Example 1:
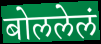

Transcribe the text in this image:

बोललेलं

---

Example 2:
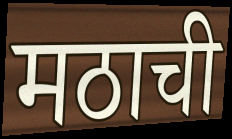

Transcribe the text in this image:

मठाची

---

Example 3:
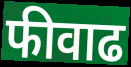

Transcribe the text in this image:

फीवाढ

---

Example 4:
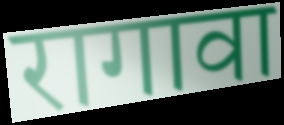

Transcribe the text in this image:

रागावा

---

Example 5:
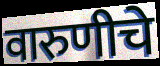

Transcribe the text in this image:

वारुणीचे